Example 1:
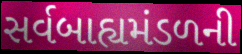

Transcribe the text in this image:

સર્વબાહ્યમંડળની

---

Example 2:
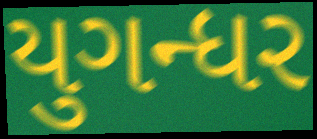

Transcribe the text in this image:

યુગન્ધર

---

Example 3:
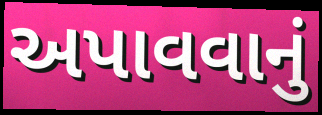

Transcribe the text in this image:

અપાવવાનું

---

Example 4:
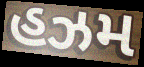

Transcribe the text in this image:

હઝમ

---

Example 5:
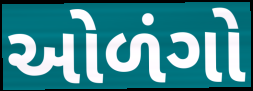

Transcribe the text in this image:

ઓળંગો